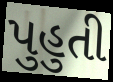
પુહુતી